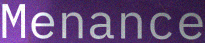
Menance